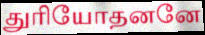
துரியோதனனே